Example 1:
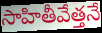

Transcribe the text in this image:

సాహితీవేత్తనే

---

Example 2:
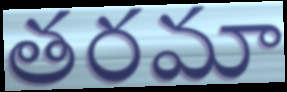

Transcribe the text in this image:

తరమా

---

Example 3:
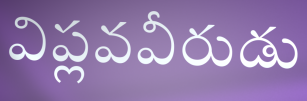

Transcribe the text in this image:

విప్లవవీరుడు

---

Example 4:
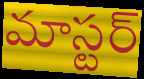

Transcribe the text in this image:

మాస్టర్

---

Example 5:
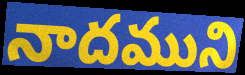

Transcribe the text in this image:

నాదముని